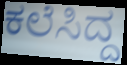
ಕಲೆಸಿದ್ದ